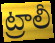
ట్రాలీ